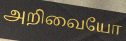
அறிவையோ